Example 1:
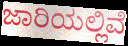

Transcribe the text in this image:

ಜಾರಿಯಲ್ಲಿವೆ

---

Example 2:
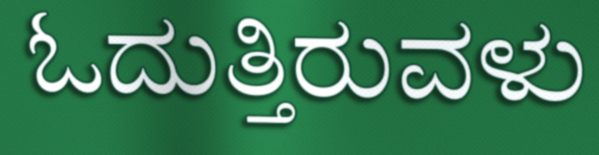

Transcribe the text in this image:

ಓದುತ್ತಿರುವಳು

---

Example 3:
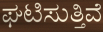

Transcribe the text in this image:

ಘಟಿಸುತ್ತಿವೆ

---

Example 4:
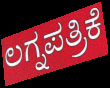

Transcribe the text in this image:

ಲಗ್ನಪತ್ರಿಕೆ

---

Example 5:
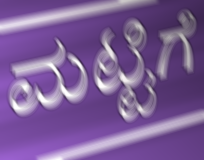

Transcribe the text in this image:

ಮಟ್ಟಿಗೆ